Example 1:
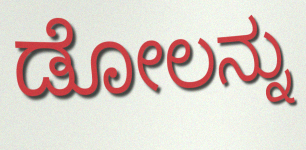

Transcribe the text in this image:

ಡೋಲನ್ನು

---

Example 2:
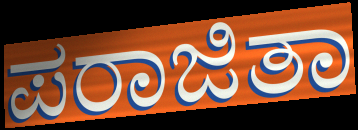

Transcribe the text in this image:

ಪರಾಜಿತಾ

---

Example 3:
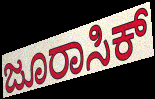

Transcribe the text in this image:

ಜೂರಾಸಿಕ್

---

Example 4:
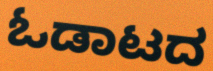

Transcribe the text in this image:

ಓಡಾಟದ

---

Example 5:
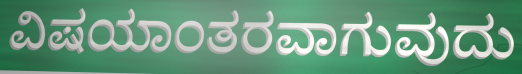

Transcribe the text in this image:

ವಿಷಯಾಂತರವಾಗುವುದು